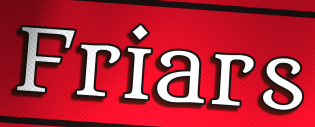
Friars